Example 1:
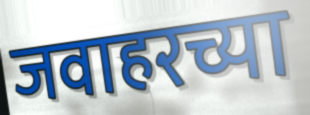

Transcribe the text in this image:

जवाहरच्या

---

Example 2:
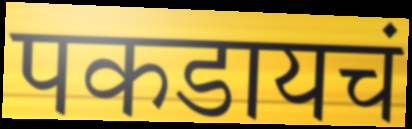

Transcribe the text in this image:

पकडायचं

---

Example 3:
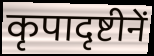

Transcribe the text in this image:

कृपादृष्टीनें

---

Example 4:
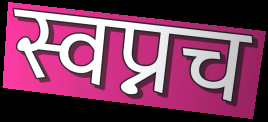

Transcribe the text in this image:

स्वप्नच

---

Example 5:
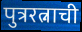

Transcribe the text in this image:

पुत्ररत्नाची